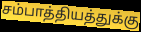
சம்பாத்தியத்துக்கு